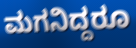
ಮಗನಿದ್ದರೂ